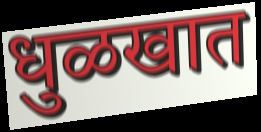
धुळखात